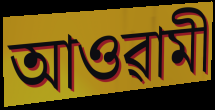
আওৱামী